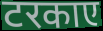
टरकाए